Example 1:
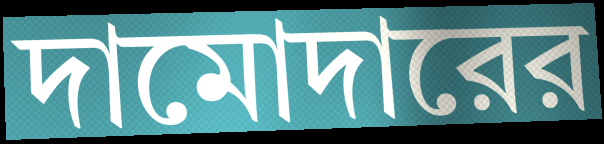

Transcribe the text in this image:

দামোদারের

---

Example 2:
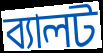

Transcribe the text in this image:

ব্যালট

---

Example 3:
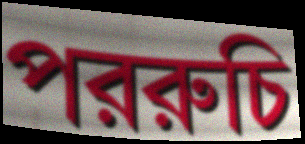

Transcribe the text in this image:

পররুচি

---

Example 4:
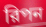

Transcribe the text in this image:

রিপন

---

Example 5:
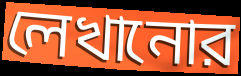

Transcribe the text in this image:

লেখানোর